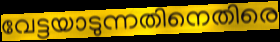
വേട്ടയാടുന്നതിനെതിരെ